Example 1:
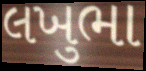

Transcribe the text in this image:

લખુભા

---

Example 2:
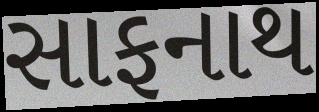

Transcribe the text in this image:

સાફનાથ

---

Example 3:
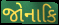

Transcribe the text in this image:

જોનાકિ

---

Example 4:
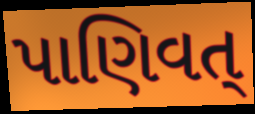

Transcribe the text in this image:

પાણિવત્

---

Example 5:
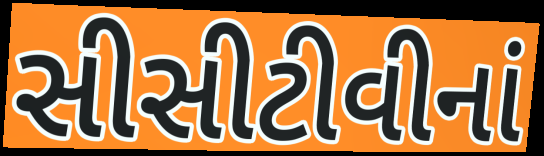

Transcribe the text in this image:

સીસીટીવીનાં